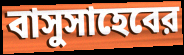
বাসুসাহেবের